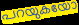
പറയുകയോ